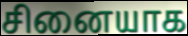
சினையாக